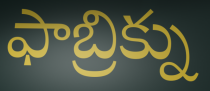
ఫాబ్రిక్ను